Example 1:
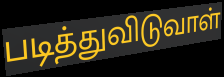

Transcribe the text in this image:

படித்துவிடுவாள்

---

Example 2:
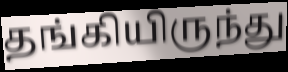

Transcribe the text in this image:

தங்கியிருந்து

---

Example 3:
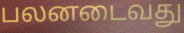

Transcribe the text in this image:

பலனடைவது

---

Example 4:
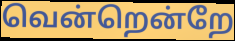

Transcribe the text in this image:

வென்றென்றே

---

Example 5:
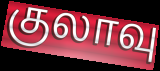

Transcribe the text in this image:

குலாவு